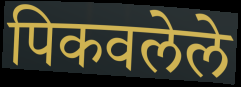
पिकवलेले